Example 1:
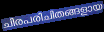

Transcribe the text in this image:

ചിരപരിചിതങ്ങളായ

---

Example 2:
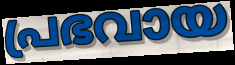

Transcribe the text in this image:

പ്രഭവായ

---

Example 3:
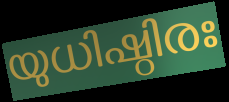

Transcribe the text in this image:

യുധിഷ്ഠിരഃ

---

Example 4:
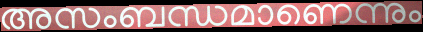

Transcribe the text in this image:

അസംബന്ധമാണെന്നും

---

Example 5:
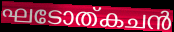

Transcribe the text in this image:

ഘടോത്കചൻ